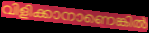
വിളിക്കാനാണെങ്കിൽ